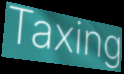
Taxing